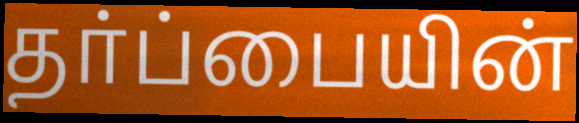
தர்ப்பையின்